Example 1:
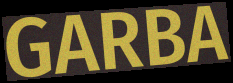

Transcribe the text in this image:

GARBA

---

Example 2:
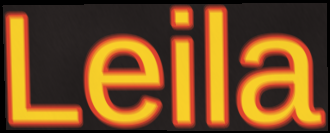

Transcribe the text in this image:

Leila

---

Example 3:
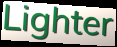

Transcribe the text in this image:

Lighter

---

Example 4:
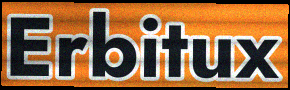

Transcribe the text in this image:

Erbitux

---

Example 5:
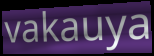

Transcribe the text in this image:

vakauya